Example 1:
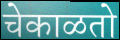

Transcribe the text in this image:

चेकाळतो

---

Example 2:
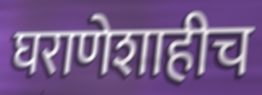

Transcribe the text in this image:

घराणेशाहीच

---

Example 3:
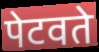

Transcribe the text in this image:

पेटवते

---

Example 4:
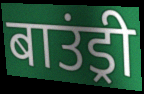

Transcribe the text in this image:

बाउंड्री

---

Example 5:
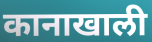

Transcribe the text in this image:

कानाखाली